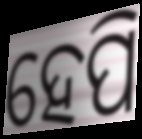
ହେପି